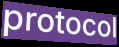
protocol